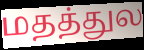
மதத்துல